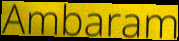
Ambaram